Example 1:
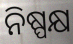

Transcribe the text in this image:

ନିଷ୍ପକ୍ଷ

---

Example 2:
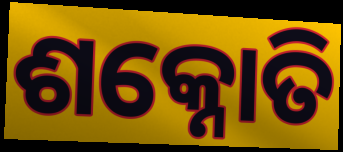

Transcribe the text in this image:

ଶକ୍ନୋତି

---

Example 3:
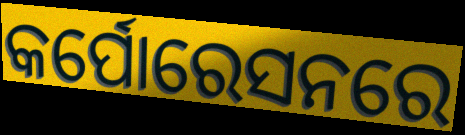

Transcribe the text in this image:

କର୍ପୋରେସନରେ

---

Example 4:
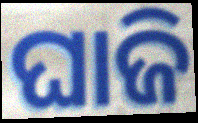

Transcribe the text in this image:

ଘାଜି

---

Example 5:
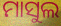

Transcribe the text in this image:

ମାସୁଲ